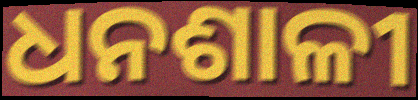
ଧନଶାଳୀ